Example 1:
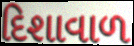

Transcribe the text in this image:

દિશાવાળ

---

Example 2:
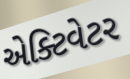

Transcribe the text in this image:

એક્ટિવેટર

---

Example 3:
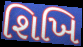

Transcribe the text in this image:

શિખિ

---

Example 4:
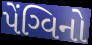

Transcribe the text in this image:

પેંગ્વિનો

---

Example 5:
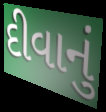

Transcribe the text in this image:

દીવાનું